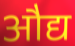
औद्य